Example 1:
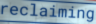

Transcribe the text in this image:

reclaiming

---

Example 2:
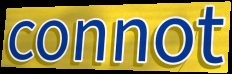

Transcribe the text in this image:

connot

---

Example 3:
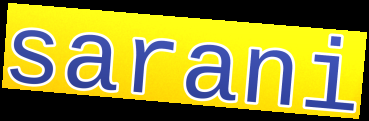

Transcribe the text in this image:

sarani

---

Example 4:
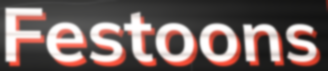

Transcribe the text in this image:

Festoons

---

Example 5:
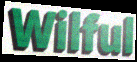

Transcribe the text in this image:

Wilful